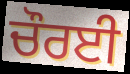
ਚੌਰਈ